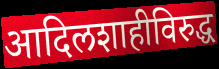
आदिलशाहीविरुद्ध